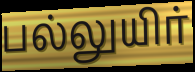
பல்லுயிர்